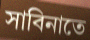
সাবিনাতে